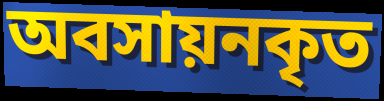
অবসায়নকৃত